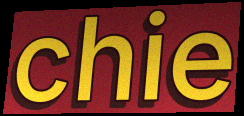
chie